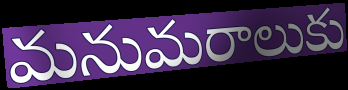
మనుమరాలుకు